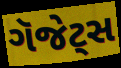
ગૅજેટ્સ